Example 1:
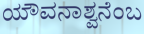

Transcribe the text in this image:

ಯೌವನಾಶ್ವನೆಂಬ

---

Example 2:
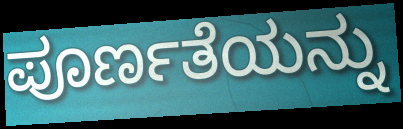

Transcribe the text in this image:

ಪೂರ್ಣತೆಯನ್ನು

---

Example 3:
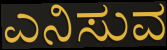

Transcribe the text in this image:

ಎನಿಸುವ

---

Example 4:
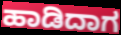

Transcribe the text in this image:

ಹಾಡಿದಾಗ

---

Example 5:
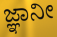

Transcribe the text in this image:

ಜ್ಞಾನೀ